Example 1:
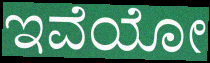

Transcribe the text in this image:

ಇವೆಯೋ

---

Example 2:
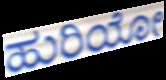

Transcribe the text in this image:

ಹುರಿಯೋ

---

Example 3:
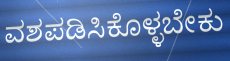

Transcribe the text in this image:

ವಶಪಡಿಸಿಕೊಳ್ಳಬೇಕು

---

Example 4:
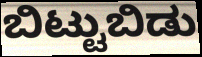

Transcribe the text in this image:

ಬಿಟ್ಟುಬಿಡು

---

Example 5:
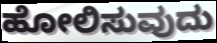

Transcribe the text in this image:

ಹೋಲಿಸುವುದು